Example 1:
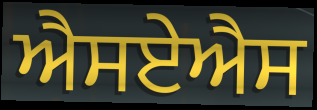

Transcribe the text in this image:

ਐਸਏਐਸ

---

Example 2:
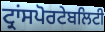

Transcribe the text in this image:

ਟ੍ਰਾਂਸਪੋਰਟੇਬਲਿਟੀ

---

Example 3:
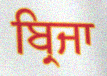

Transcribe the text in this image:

ਬ੍ਰਿਜਾ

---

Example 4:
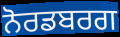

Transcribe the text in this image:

ਨੋਰਡਬਰਗ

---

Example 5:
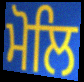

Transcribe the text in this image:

ਮੋਲਿ